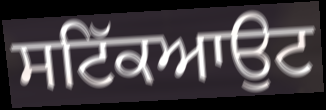
ਸਟਿੱਕਆਉਟ